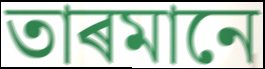
তাৰমানে